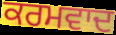
ਕਰਮਵਾਦ